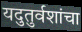
यदुतुर्वशांचा